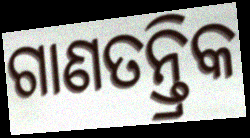
ଗାଣତନ୍ତ୍ରିକ